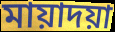
মায়াদয়া